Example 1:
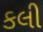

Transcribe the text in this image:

કલી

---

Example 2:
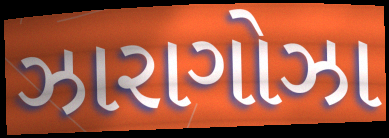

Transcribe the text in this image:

ઝારાગોઝા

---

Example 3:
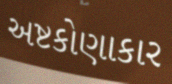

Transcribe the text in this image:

અષ્ટકોણાકાર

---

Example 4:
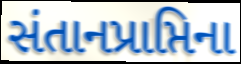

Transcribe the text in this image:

સંતાનપ્રાપ્તિના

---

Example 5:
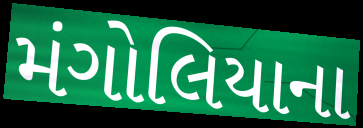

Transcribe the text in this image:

મંગોલિયાના